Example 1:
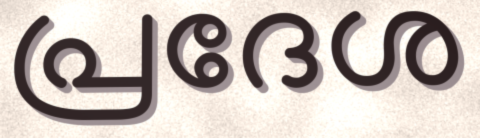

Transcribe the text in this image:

പ്രദേശ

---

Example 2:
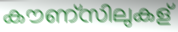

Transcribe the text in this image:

കൗണ്സിലുകള്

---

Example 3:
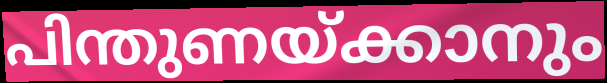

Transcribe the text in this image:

പിന്തുണയ്ക്കാനും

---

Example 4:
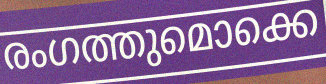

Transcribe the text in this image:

രംഗത്തുമൊക്കെ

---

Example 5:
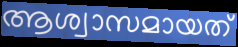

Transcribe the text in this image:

ആശ്വാസമായത്